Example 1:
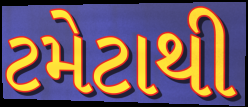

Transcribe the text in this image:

ટમેટાથી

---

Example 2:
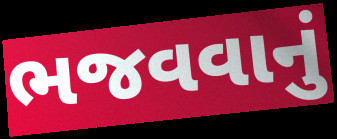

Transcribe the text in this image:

ભજવવાનું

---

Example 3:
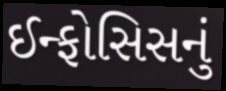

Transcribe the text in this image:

ઈન્ફોસિસનું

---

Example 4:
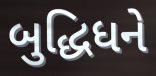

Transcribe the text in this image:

બુદ્ધિધને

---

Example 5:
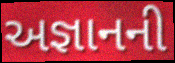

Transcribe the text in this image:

અજ્ઞાનની